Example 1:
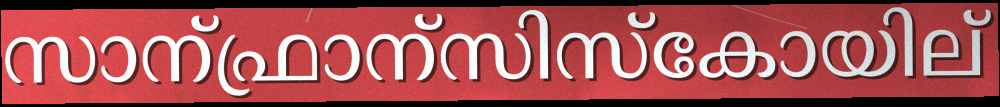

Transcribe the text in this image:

സാന്ഫ്രാന്സിസ്കോയില്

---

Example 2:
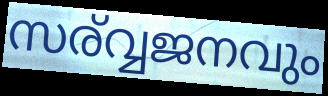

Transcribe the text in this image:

സര്വ്വജനവും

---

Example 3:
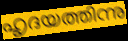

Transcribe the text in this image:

ഹൃദയത്തിന്നു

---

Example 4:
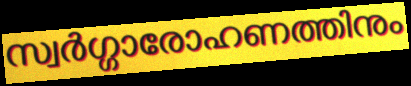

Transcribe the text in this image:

സ്വർഗ്ഗാരോഹണത്തിനും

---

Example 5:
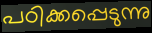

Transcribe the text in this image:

പഠിക്കപ്പെടുന്നു